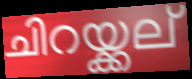
ചിറയ്ക്കല്